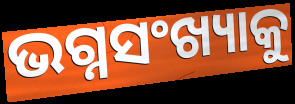
ଭଗ୍ନସଂଖ୍ୟାକୁ